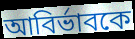
আবির্ভাবকে